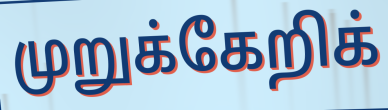
முறுக்கேறிக்